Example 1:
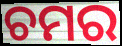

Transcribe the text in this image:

ଚମର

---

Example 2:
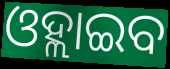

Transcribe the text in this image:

ଓହ୍ଲାଇବ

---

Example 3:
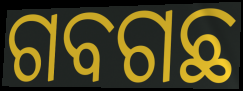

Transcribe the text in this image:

ଗବଗଛ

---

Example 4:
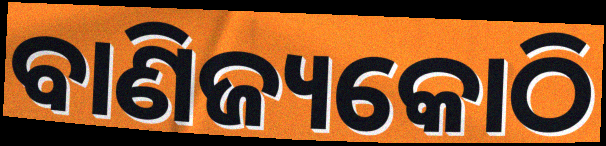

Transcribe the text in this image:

ବାଣିଜ୍ୟକୋଠି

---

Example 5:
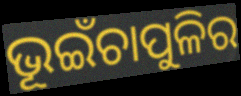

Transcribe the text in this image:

ଭୂଇଁଚାପୁଳିର